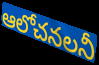
ఆలోచనలనీ